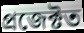
প্ৰজেক্টত